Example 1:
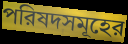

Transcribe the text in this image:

পরিষদসমূহের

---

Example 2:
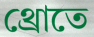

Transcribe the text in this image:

থ্রোতে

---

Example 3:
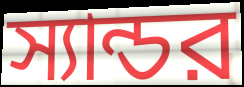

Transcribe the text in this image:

স্যান্ডর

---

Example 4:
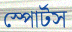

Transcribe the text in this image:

স্পোর্টস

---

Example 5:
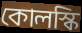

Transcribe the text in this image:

কোলস্কি